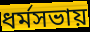
ধর্মসভায়